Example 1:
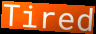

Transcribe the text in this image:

Tired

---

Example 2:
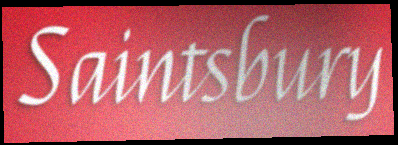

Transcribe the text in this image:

Saintsbury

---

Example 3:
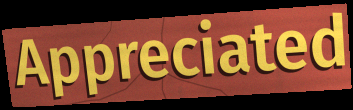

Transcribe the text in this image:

Appreciated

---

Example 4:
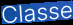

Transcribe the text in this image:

Classe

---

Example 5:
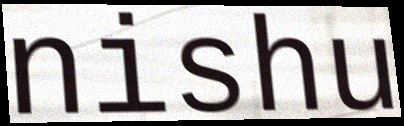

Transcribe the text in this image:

nishu